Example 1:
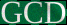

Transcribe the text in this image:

GCD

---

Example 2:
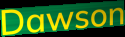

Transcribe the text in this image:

Dawson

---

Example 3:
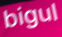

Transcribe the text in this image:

bigul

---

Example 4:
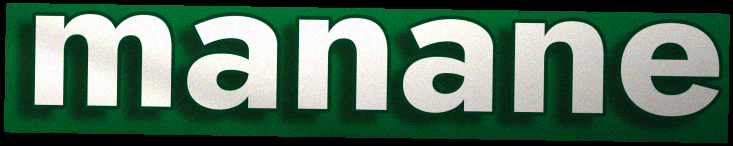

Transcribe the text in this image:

manane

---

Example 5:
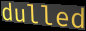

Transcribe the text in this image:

dulled